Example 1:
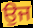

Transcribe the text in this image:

ਉਜ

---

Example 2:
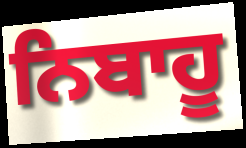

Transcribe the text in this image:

ਨਿਬਾਹੂ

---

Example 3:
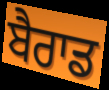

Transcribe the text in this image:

ਬੈਰਾਡ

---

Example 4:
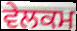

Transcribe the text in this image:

ਵੇਲਕਮ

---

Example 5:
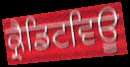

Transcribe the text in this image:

ਕ੍ਰੈਡਿਟਵਿਊ